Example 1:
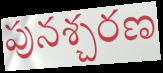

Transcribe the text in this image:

పునశ్చరణ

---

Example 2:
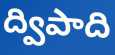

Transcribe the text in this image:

ద్విపాది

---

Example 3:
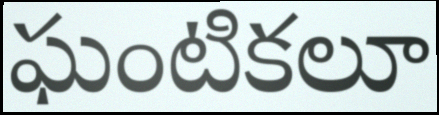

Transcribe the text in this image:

ఘంటికలూ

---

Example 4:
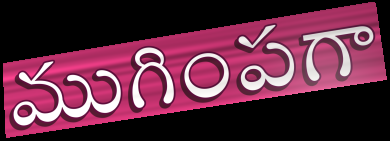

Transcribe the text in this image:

ముగింపగా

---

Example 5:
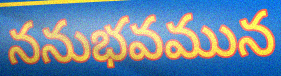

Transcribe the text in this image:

ననుభవమున